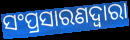
ସଂପ୍ରସାରଣଦ୍ଵାରା